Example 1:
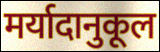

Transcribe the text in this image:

मर्यादानुकूल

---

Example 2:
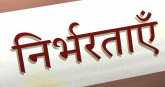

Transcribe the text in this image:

निर्भरताएँ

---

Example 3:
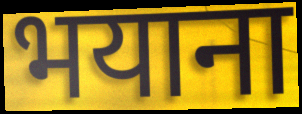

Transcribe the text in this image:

भयाना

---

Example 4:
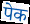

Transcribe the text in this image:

पेक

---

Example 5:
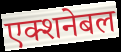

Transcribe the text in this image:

एक्शनेबल